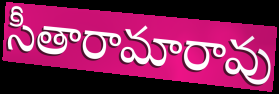
సీతారామారావు